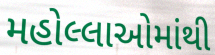
મહોલ્લાઓમાંથી